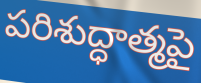
పరిశుద్ధాత్మపై